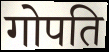
गोपति